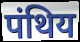
पंथिय